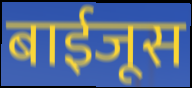
बाईजूस